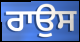
ਰਾਉਸ